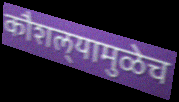
कौशल्यामुळेच